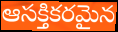
ఆసక్తికరమైన